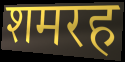
शमरह